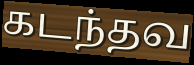
கடந்தவ